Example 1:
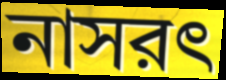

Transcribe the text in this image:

নাসরৎ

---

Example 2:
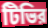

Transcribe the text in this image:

টিভির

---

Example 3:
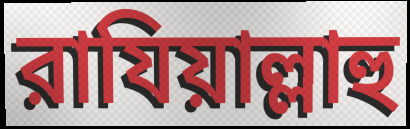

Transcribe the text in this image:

রাযিয়াল্লাহু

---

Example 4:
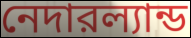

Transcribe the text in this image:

নেদারল্যান্ড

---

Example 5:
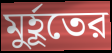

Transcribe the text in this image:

মুর্হূতের